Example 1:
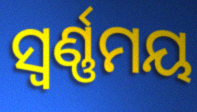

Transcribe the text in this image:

ସ୍ୱର୍ଣ୍ଣମୟ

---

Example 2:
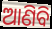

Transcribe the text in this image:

ଆଣିବି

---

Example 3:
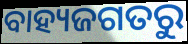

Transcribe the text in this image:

ବାହ୍ୟଜଗତରୁ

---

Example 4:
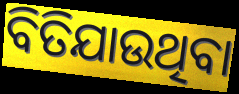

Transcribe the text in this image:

ବିତିଯାଉଥିବା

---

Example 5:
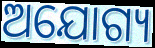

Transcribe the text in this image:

ଅଯୋଗ୍ୟ